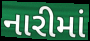
નારીમાં